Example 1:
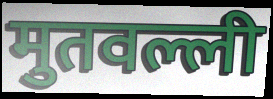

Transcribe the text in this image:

मुतवल्ली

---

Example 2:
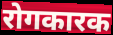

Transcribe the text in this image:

रोगकारक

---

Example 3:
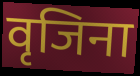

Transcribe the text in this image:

वृजिना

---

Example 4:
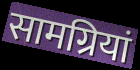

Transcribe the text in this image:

सामग्रियां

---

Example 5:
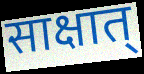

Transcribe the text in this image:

साक्षात्